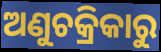
ଅଣୁଚକ୍ରିକାରୁ